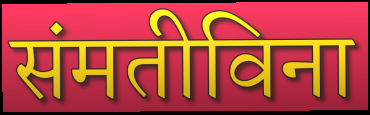
संमतीविना